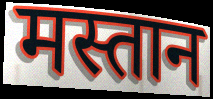
मस्तान